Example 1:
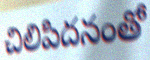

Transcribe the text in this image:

చిలిపిదనంతో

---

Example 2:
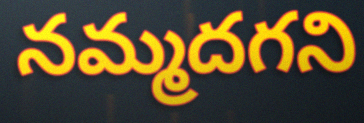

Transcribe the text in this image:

నమ్మదగని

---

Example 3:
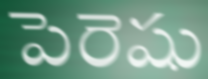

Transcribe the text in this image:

పెరెషు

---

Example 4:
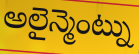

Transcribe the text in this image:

అలైన్మెంట్ను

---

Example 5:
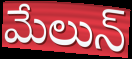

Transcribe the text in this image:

మేలున్